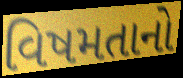
વિષમતાનો